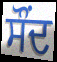
ਸੌਂਦ